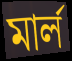
মার্ল